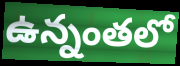
ఉన్నంతలో